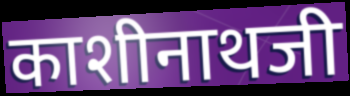
काशीनाथजी